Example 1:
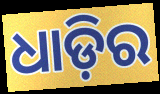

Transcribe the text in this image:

ଧାଡ଼ିର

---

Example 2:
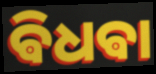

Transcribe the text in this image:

ଵିଧଵା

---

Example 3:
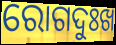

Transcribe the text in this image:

ରୋଗଦୁଃଖ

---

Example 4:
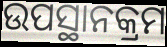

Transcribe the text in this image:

ଉପସ୍ଥାନକ୍ରମ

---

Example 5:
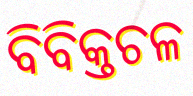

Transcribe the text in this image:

ବିବିକ୍ତଚଳ